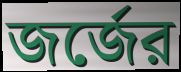
জর্জের